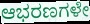
ಆಭರಣಗಳೇ